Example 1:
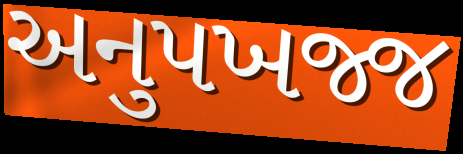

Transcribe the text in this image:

અનુપખજ્જ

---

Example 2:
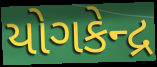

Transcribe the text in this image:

યોગકેન્દ્ર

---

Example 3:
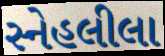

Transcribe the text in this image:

સ્નેહલીલા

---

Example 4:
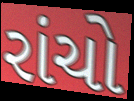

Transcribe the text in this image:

રાંચો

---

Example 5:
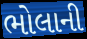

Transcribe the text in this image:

ભોલાની